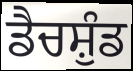
ਡੈਚਸ਼ੁੰਡ